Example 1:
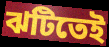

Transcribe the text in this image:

ঝটিতেই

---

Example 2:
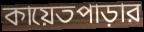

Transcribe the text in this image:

কায়েতপাড়ার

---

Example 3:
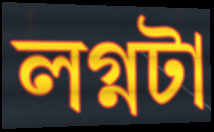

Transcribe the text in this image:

লগ্নটা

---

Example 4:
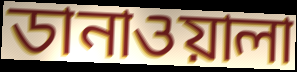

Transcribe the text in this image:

ডানাওয়ালা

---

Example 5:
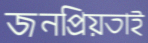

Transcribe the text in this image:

জনপ্রিয়তাই